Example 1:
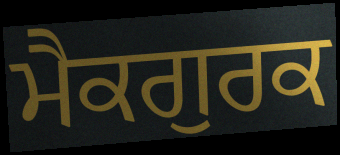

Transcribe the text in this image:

ਮੈਕਗੁਰਕ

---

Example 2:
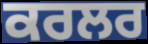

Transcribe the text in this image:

ਕਰਲਰ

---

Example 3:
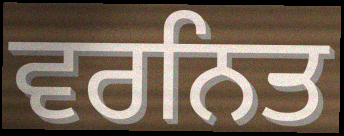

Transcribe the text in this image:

ਵਰਨਿਤ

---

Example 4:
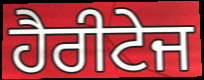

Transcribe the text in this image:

ਹੈਰੀਟੇਜ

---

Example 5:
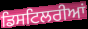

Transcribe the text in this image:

ਡਿਸਟਿਲਰੀਆਂ